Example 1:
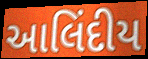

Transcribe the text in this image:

આલિંદીય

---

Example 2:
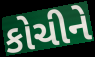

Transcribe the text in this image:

કોચીને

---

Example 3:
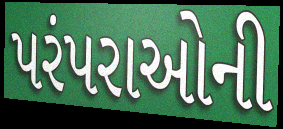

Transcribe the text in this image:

પરંપરાઓની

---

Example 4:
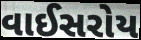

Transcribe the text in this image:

વાઈસરોય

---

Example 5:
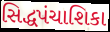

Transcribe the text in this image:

સિદ્ધપંચાશિકા